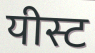
यीस्ट